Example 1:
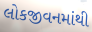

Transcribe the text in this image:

લોકજીવનમાંથી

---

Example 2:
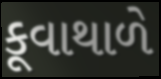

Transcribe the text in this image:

કૂવાથાળે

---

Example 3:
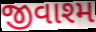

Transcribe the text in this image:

જીવાશ્મ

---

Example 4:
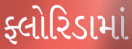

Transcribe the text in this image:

ફ્લોરિડામાં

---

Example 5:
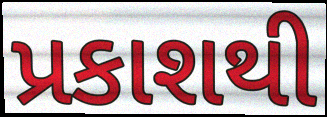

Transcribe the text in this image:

પ્રકાશથી